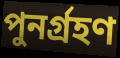
পুনর্গ্রহণ